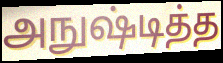
அநுஷ்டித்த